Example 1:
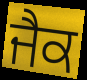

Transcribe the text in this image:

ਜੈਕ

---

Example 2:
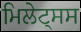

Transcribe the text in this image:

ਮਿਲੇਟ੍ਸਸ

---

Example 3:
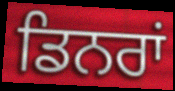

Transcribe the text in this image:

ਡਿਨਰਾਂ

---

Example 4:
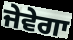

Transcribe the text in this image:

ਜੇਵੇਗਾ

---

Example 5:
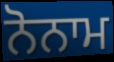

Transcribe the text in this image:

ਨੋਨਾਮ